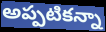
అప్పటికన్నా